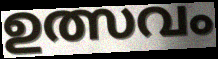
ഉത്സവം